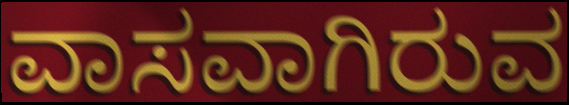
ವಾಸವಾಗಿರುವ